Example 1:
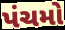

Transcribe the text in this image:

પંચમો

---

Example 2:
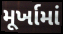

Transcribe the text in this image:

મૂર્ખામાં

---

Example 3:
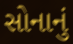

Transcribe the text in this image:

સોનાનું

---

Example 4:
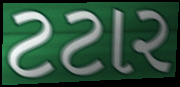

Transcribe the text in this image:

ટટાર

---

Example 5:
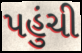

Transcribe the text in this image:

પહુંચી